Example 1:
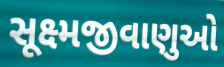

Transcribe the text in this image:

સૂક્ષ્મજીવાણુઓ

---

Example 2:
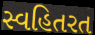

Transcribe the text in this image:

સ્વહિતરત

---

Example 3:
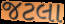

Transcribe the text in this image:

જટલા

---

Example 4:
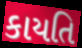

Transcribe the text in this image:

કાયતિ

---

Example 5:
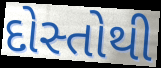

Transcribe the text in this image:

દોસ્તોથી